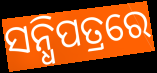
ସନ୍ଧିପତ୍ରରେ